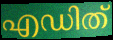
എഡിത്